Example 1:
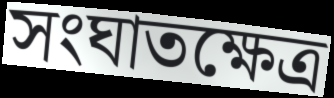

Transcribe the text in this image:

সংঘাতক্ষেত্র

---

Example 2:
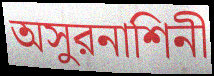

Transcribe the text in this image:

অসুরনাশিনী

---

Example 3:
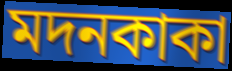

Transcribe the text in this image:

মদনকাকা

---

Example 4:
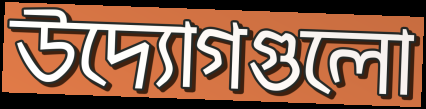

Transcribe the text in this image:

উদ্যোগগুলো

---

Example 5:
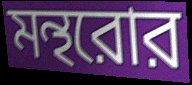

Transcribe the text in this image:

মন্থরোর